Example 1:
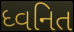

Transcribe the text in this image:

ધ્વનિત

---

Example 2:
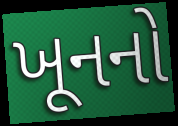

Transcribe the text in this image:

ખૂનનો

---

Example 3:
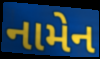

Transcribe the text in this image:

નામેન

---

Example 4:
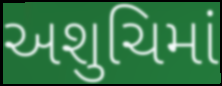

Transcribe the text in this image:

અશુચિમાં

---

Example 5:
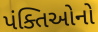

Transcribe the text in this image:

પંક્તિઓનો